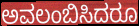
ಅವಲಂಬಿಸಿದರೂ